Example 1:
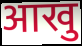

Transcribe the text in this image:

आखु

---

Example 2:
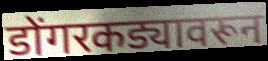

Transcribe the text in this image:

डोंगरकड्यावरून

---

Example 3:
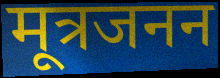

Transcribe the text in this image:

मूत्रजनन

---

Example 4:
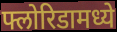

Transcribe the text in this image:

फ्लोरिडामध्ये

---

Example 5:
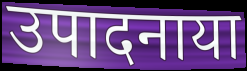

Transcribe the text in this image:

उपादनाया